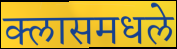
क्लासमधले